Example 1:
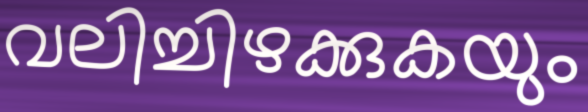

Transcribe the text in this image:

വലിച്ചിഴക്കുകയും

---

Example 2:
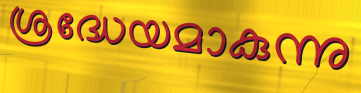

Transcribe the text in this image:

ശ്രദ്ധേയമാകുന്നു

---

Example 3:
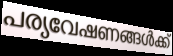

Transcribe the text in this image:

പര്യവേഷണങ്ങൾക്ക്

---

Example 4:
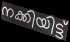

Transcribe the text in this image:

നക്കിയിട്ട്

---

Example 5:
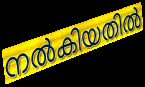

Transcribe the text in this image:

നൽകിയതിൽ